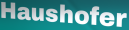
Haushofer